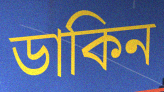
ডাকিন